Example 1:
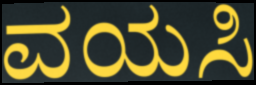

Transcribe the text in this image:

ವಯಸಿ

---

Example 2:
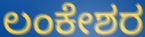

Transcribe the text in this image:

ಲಂಕೇಶರ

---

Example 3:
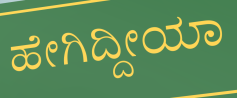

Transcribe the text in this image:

ಹೇಗಿದ್ದೀಯಾ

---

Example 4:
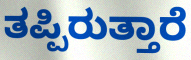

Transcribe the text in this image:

ತಪ್ಪಿರುತ್ತಾರೆ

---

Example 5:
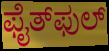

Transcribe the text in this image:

ಫೈತ್‌ಫುಲ್